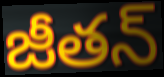
జీతన్